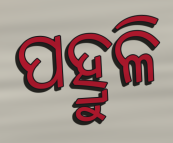
ପହ୍ରୁଳି